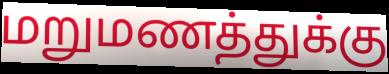
மறுமணத்துக்கு